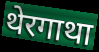
थेरगाथा